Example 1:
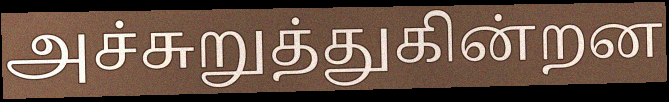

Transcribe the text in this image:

அச்சுறுத்துகின்றன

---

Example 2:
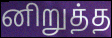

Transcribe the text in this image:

னிறுத்த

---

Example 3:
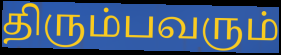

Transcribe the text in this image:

திரும்பவரும்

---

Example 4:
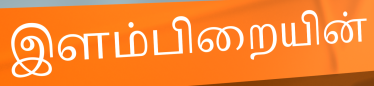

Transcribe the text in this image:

இளம்பிறையின்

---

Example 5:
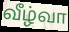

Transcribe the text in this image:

வீழ்வா